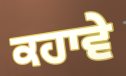
ਕਹਾਵੇ